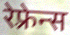
रेफ़्रेन्स